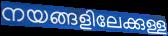
നയങ്ങളിലേക്കുള്ള